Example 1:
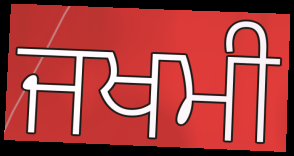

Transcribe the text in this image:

ਜਖਮੀ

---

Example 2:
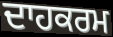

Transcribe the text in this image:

ਦਾਹਕਰਮ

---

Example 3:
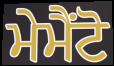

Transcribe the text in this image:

ਮੇਮੈਂਟੋ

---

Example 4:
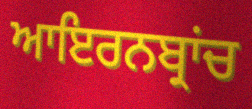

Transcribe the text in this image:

ਆਇਰਨਬ੍ਰਾਂਚ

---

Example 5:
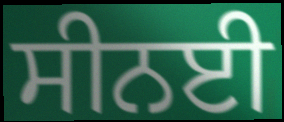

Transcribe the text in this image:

ਸੀਨਈ